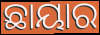
ଛାୟାର